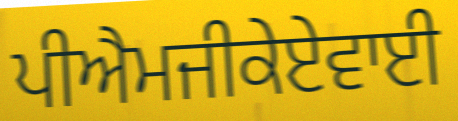
ਪੀਐਮਜੀਕੇਏਵਾਈ